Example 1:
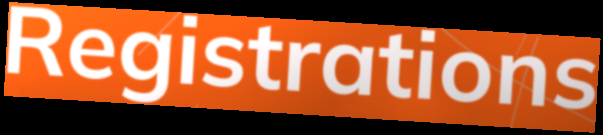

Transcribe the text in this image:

Registrations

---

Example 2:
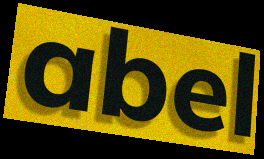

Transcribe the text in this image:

abel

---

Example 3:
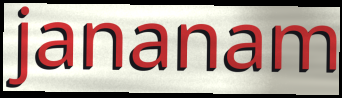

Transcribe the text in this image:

jananam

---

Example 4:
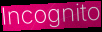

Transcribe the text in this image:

Incognito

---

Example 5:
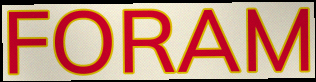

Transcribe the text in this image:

FORAM